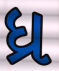
ધ્ર